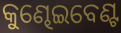
କୁଣ୍ଢେଇବେଣ୍ଟ